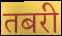
तबरी